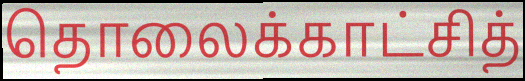
தொலைக்காட்சித்